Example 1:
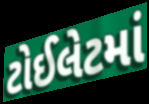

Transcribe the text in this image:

ટોઈલેટમાં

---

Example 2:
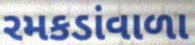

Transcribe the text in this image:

રમકડાંવાળા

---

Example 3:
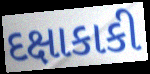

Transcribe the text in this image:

દક્ષાકાકી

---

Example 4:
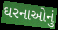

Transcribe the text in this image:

ઘરનાઓનું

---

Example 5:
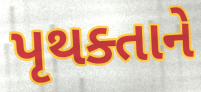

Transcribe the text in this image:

પૃથક્તાને